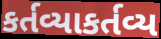
કર્તવ્યાકર્તવ્ય